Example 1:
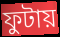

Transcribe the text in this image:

ফুটায়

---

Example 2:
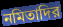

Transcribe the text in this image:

নমিতাদির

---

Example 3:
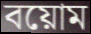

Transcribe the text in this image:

বয়োম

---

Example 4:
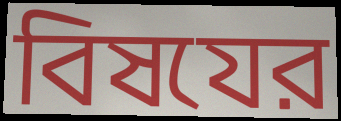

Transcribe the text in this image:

বিষযের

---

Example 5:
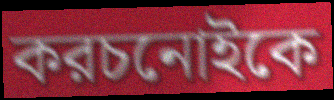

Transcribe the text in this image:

করচনোইকে